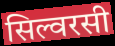
सिल्वरसी